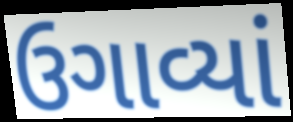
ઉગાવ્યાં